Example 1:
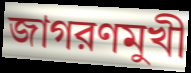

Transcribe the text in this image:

জাগরণমুখী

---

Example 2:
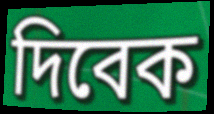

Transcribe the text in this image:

দিবেক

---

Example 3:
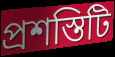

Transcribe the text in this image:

প্রশস্তিটি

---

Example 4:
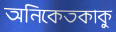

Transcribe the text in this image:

অনিকেতকাকু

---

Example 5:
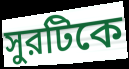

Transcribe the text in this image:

সুরটিকে